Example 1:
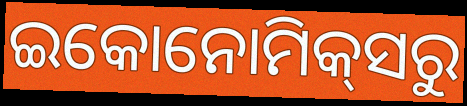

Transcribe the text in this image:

ଇକୋନୋମିକ୍‌ସରୁ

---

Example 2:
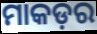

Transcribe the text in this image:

ମାକଡ଼ର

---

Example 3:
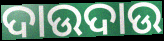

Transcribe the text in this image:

ଦାଉଦାଉ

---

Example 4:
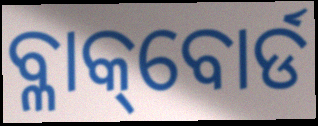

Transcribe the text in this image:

ବ୍ଳାକ୍‌ବୋର୍ଡ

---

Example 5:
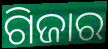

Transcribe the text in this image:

ଗିଜାର